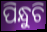
ପିନ୍ଧୁଚି